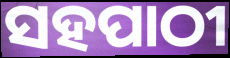
ସହପାଠୀ